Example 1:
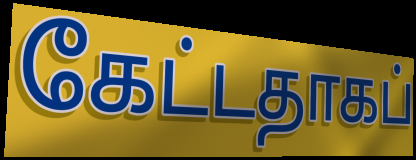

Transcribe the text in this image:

கேட்டதாகப்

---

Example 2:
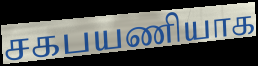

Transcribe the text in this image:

சகபயணியாக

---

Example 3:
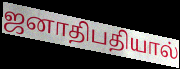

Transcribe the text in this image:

ஜனாதிபதியால்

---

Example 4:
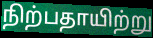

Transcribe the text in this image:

நிற்பதாயிற்று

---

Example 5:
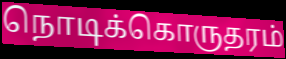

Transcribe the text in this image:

நொடிக்கொருதரம்